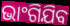
ଭାଂଗିଯିବ